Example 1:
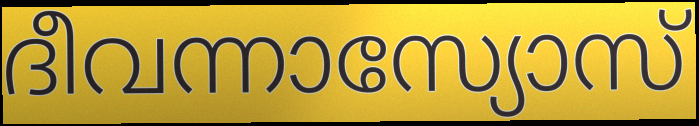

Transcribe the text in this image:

ദീവന്നാസ്യോസ്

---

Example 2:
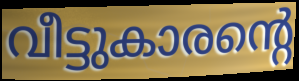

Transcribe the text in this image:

വീട്ടുകാരന്റെ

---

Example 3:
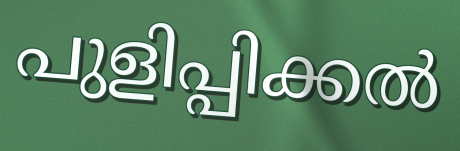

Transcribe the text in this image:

പുളിപ്പിക്കൽ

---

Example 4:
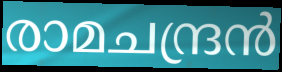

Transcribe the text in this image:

രാമചന്ദ്രൻ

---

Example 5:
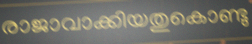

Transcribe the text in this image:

രാജാവാക്കിയതുകൊണ്ടു